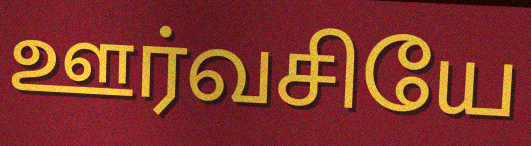
ஊர்வசியே